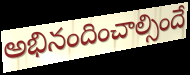
అభినందించాల్సిందే